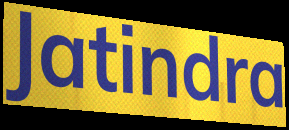
Jatindra